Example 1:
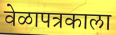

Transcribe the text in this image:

वेळापत्रकाला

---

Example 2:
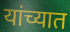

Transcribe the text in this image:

यांच्यात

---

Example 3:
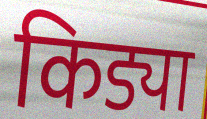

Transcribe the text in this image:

किड्या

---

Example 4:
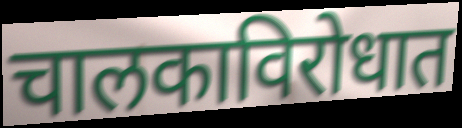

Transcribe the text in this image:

चालकाविरोधात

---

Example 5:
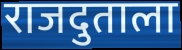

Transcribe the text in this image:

राजदुताला